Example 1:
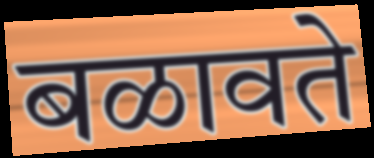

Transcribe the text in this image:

बळावते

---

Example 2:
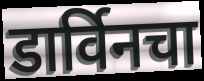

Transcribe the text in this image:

डार्विनचा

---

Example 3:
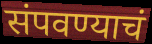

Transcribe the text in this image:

संपवण्याचं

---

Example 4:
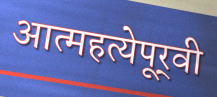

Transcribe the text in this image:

आत्महत्येपूर्वी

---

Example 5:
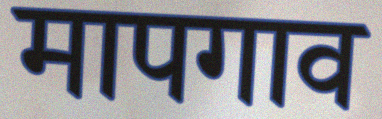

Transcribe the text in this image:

मापगाव